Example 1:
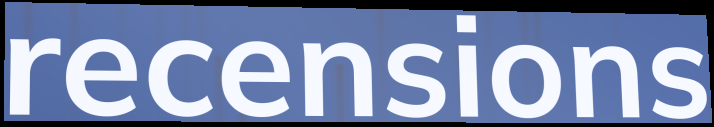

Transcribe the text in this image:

recensions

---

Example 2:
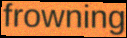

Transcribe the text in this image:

frowning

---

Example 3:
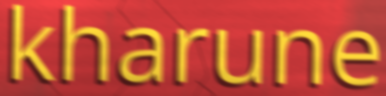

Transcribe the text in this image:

kharune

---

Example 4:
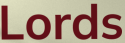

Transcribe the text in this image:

Lords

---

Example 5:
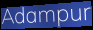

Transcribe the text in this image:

Adampur